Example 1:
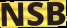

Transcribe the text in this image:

NSB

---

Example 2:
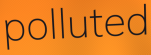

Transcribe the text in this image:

polluted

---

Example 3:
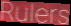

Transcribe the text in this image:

Rulers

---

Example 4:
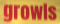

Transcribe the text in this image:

growls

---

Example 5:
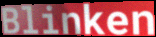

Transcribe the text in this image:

Blinken